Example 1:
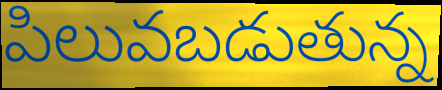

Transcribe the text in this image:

పిలువబడుతున్న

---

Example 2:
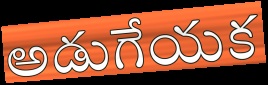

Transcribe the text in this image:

అడుగేయక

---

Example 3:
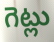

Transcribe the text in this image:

గెట్లు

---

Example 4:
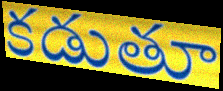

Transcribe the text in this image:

కడుతూ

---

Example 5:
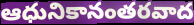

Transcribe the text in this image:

ఆధునికానంతరవాద